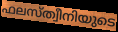
ഫലസ്ത്വീനിയുടെ